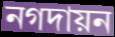
নগদায়ন